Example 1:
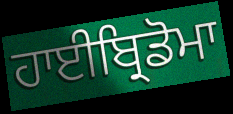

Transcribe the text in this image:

ਹਾਈਬ੍ਰਿਡੋਮਾ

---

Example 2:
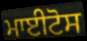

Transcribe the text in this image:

ਮਾਈਟੋਸ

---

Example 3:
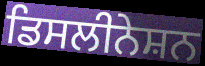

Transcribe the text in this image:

ਡਿਸਲੀਨੇਸ਼ਨ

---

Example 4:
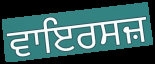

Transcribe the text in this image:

ਵਾਇਰਸਜ਼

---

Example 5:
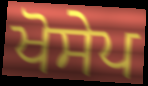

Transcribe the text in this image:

ਖੋਸੇਪ